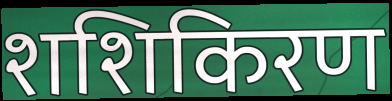
शशिकिरण